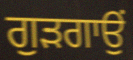
ਗੁੜਗਾਉਂ